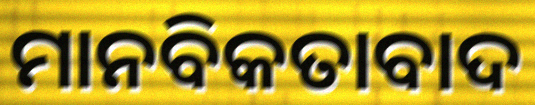
ମାନବିକତାବାଦ